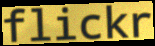
flickr